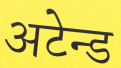
अटेन्ड